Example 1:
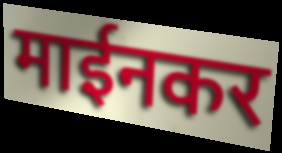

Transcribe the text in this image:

माईनकर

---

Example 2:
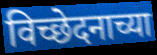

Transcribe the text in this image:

विच्छेदनाच्या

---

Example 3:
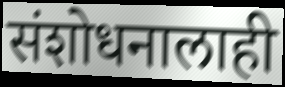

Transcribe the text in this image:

संशोधनालाही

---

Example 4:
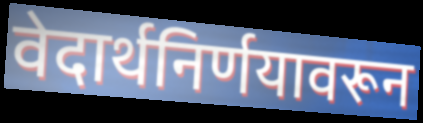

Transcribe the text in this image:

वेदार्थनिर्णयावरून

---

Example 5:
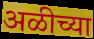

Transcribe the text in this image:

अळीच्या